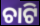
ଚାଟି